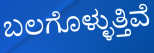
ಬಲಗೊಳ್ಳುತ್ತಿವೆ